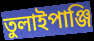
তুলাইপাঞ্জি